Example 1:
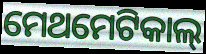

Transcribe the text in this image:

ମେଥମେଟିକାଲ୍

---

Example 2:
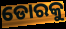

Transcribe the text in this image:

ଡୋରକୁ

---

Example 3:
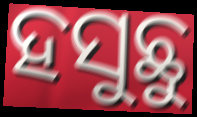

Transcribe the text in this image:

ହସୁଛୁ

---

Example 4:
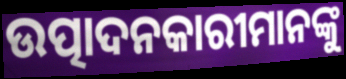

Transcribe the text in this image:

ଉତ୍ପାଦନକାରୀମାନଙ୍କୁ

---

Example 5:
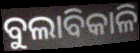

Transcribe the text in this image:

ବୁଲାବିକାଳି